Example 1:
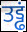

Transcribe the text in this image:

उड्ढं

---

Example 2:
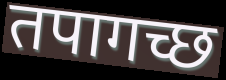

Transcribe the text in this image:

तपागच्छ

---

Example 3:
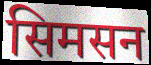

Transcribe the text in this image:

सिमसन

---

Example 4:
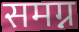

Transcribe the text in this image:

समग्न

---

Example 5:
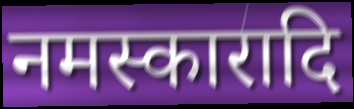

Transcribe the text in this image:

नमस्कारादि